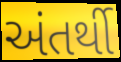
અંતર્થી